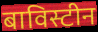
बाविस्टीन